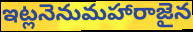
ఇట్లనెనుమహారాజైన